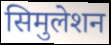
सिमुलेशन